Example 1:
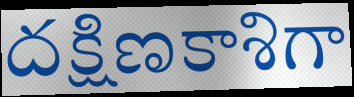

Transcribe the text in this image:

దక్షిణకాశిగా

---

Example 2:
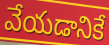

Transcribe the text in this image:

వేయడానికే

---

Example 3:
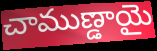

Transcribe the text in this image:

చాముణ్డాయై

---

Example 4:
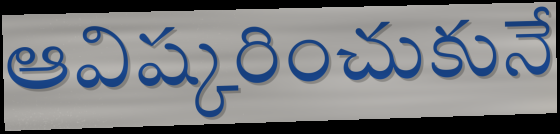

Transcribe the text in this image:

ఆవిష్కరించుకునే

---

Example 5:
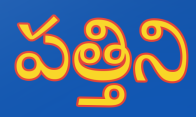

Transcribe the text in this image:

పత్తిని